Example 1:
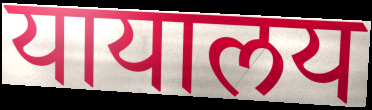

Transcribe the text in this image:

यायालय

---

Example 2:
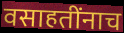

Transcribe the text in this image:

वसाहतींनाच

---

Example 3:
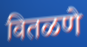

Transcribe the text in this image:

वितळणे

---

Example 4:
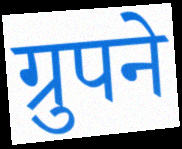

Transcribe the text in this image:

ग्रुपने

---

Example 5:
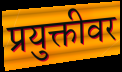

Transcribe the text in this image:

प्रयुक्तीवर